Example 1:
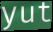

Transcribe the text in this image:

yut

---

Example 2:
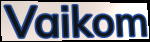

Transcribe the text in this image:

Vaikom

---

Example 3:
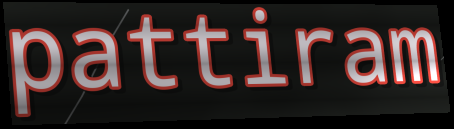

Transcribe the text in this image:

pattiram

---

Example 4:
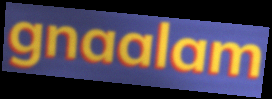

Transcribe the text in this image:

gnaalam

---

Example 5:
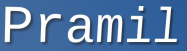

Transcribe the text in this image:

Pramil